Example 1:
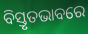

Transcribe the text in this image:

ବିସ୍ତୃତଭାବରେ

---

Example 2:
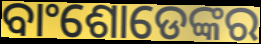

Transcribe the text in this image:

ବାଂଶୋଡେଙ୍କର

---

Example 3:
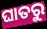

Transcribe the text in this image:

ଘାତରୁ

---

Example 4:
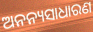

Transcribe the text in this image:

ଅନନ୍ୟସାଧାରଣ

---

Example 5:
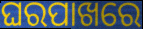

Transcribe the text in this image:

ଘରପାଖରେ